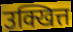
उक्खित्त